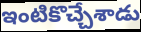
ఇంటికొచ్చేశాడు